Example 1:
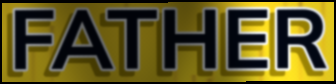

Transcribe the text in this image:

FATHER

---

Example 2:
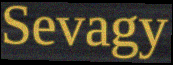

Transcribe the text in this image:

Sevagy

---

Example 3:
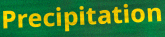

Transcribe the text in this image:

Precipitation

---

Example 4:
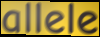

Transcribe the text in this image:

allele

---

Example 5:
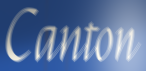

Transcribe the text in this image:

Canton